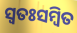
ସ୍ୱତଃସମ୍ବିତ